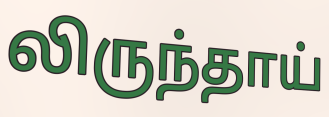
லிருந்தாய்